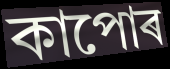
কাপোৰ